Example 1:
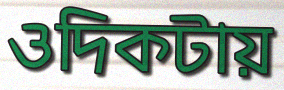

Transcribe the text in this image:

ওদিকটায়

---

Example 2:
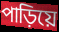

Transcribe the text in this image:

পাড়িয়ে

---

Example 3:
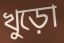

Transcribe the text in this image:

খুড়ো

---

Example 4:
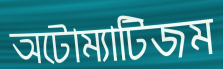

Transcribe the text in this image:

অটোম্যাটিজম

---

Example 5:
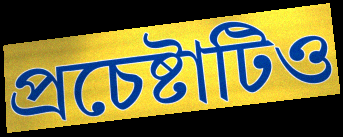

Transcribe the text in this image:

প্রচেষ্টাটিও